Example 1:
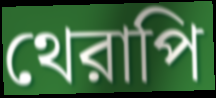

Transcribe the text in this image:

থেরাপি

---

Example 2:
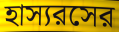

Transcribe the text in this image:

হাস্যরসের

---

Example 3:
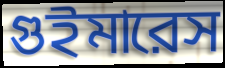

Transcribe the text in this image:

গুইমারেস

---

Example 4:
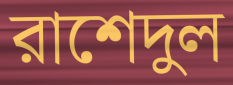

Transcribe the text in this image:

রাশেদুল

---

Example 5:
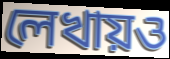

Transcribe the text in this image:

লেখায়ও